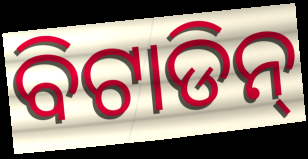
ବିଟାଡିନ୍